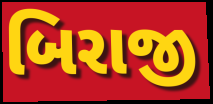
બિરાજી